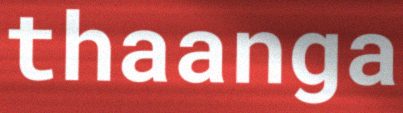
thaanga